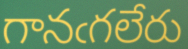
గానఁగలేరు